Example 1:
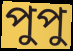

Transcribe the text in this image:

পুপু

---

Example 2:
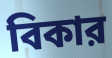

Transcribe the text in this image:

বিকার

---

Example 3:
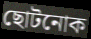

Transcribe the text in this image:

ছোটনোক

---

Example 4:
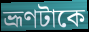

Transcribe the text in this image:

ভ্রূণটাকে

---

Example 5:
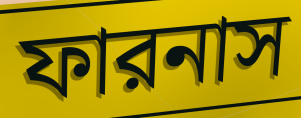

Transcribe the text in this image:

ফারনাস